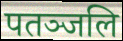
पतञ्जलि